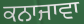
ਕਨਾਜਾਵਾ